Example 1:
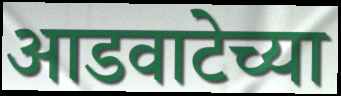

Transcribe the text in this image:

आडवाटेच्या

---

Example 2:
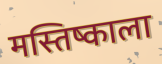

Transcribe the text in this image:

मस्तिष्काला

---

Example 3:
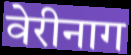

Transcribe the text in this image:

वेरीनाग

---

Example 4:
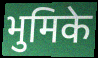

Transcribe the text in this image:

भुमिके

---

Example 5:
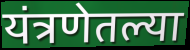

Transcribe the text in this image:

यंत्रणेतल्या